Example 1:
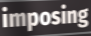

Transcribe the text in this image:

imposing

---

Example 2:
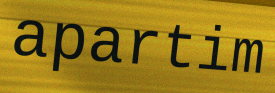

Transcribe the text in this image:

apartim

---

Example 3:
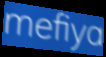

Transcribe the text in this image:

mefiya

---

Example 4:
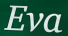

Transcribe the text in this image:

Eva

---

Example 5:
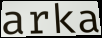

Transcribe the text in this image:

arka